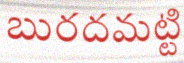
బురదమట్టి